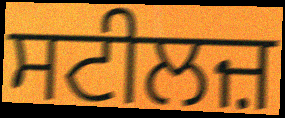
ਸਟੀਲਜ਼